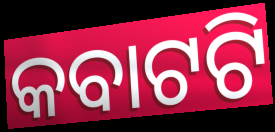
କବାଟଟି